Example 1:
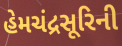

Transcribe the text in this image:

હેમચંદ્રસૂરિની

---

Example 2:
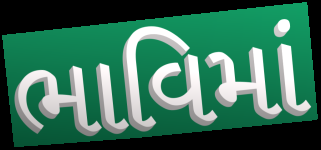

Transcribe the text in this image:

ભાવિમાં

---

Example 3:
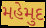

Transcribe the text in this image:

મહેમુદ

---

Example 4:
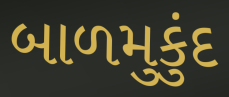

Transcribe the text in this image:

બાળમુકુંદ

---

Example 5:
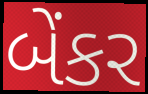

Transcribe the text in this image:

બેંકર